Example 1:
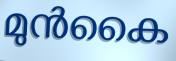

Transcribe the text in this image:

മുൻകൈ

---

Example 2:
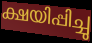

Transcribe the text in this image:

ക്ഷയിപ്പിച്ചു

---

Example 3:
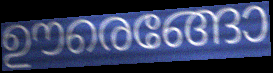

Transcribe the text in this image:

ഊരെങ്ങോ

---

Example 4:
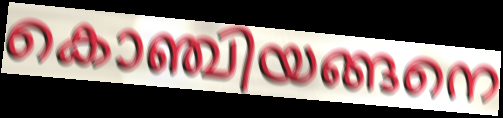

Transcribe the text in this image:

കൊഞ്ചിയങ്ങനെ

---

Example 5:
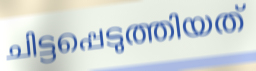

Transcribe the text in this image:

ചിട്ടപ്പെടുത്തിയത്